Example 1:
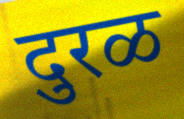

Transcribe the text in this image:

दुरळ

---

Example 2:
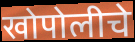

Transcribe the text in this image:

खोपोलीचे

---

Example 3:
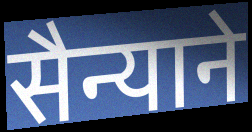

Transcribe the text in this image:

सैन्याने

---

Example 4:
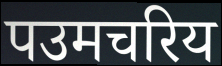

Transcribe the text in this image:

पउमचरिय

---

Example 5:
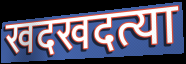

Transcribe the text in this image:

खदखदत्या